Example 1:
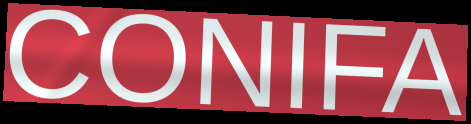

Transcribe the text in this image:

CONIFA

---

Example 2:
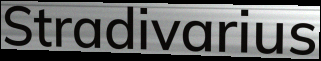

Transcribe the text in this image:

Stradivarius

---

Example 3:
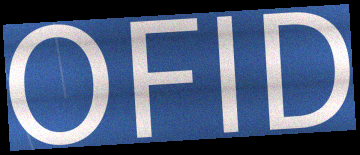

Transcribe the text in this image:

OFID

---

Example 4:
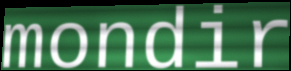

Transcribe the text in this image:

mondir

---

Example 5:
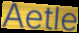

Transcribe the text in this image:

Aetle